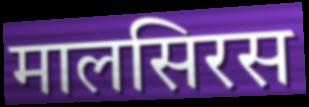
मालसिरस